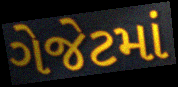
ગેજેટમાં